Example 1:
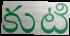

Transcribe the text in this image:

కుటి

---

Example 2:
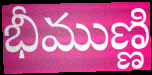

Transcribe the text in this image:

భీముణ్ణి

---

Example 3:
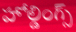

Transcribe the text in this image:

హోల్డింగ్స్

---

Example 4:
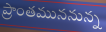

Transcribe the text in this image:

ప్రాంతముననున్న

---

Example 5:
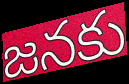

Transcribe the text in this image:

జనకు